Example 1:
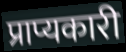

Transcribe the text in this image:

प्राप्यकारी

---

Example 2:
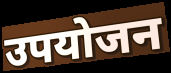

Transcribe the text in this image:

उपयोजन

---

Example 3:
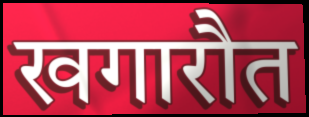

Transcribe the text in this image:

खगारौत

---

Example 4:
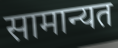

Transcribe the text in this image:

सामान्यत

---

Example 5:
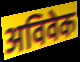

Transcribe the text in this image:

अविवेक